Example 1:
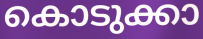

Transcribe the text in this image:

കൊടുക്കാ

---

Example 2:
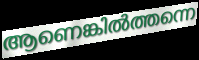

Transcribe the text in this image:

ആണെങ്കിൽത്തന്നെ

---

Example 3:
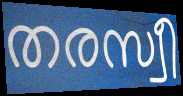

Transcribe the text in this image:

തരസ്വീ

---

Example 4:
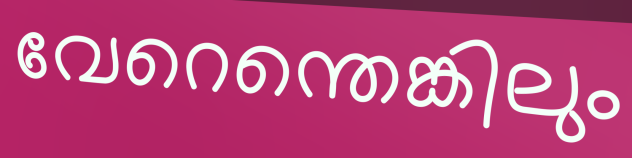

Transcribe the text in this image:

വേറെന്തെങ്കിലും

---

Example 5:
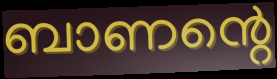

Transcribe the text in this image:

ബാണന്റെ